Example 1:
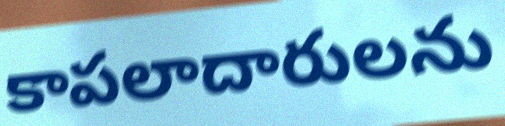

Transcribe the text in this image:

కాపలాదారులను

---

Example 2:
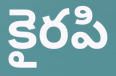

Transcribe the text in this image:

కైరపి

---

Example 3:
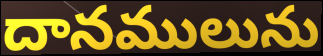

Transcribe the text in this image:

దానములును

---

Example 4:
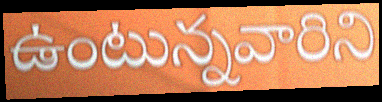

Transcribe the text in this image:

ఉంటున్నవారిని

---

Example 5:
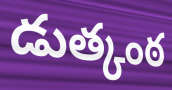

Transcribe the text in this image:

డుత్కంఠ